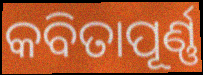
କବିତାପୂର୍ଣ୍ଣ